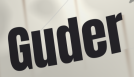
Guder